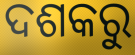
ଦଶକରୁ